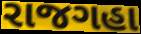
રાજગહા